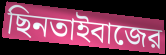
ছিনতাইবাজের